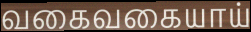
வகைவகையாய்